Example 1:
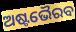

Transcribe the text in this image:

ଅଷ୍ଟଭୈରବ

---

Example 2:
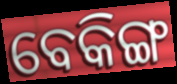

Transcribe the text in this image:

ବେକିଙ୍ଗ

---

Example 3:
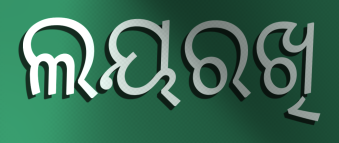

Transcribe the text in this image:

ଲୟରଖି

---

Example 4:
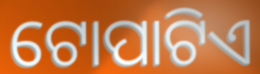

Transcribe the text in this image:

ଟୋପାଟିଏ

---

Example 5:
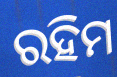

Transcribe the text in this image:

ରହିମ